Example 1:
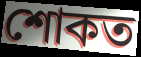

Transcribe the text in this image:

শোকত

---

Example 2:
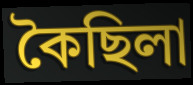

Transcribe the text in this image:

কৈছিলা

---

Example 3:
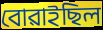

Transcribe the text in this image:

বোৱাইছিল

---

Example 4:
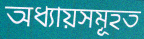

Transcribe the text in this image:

অধ্যায়সমূহত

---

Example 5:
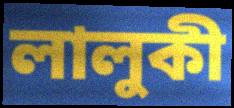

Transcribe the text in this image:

লালুকী